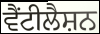
ਵੈਂਟੀਲੈਸ਼ਨ